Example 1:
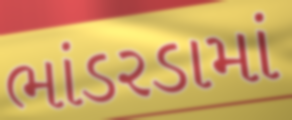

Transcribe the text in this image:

ભાંડરડામાં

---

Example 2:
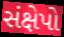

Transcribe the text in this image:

સંક્ષેપો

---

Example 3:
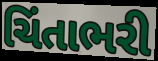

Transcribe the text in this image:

ચિંતાભરી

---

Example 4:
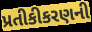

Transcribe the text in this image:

પ્રતીકીકરણની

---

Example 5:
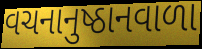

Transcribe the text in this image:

વચનાનુષ્ઠાનવાળા